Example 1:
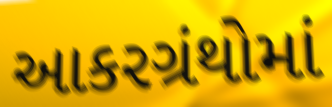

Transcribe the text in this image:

આકરગ્રંથોમાં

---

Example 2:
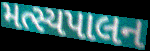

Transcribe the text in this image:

મત્સ્યપાલન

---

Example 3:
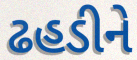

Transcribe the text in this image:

ઢહડીને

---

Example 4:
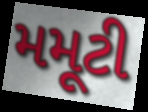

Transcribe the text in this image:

મમૂટી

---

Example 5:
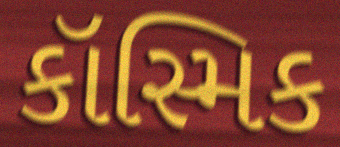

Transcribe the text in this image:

કૉસ્મિક